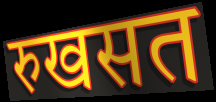
रुखसत